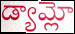
డ్యామ్లో